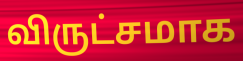
விருட்சமாக